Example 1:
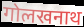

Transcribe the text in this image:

गोलखनाथ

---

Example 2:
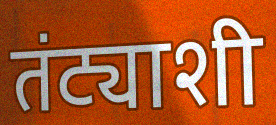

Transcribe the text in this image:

तंट्याशी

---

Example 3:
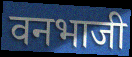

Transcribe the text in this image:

वनभाजी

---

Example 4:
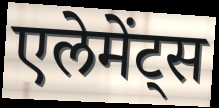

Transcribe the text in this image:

एलेमेंट्स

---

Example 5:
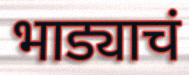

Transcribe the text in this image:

भाड्याचं